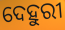
ଦେହୁରୀ